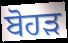
ਬੋਹੜ